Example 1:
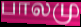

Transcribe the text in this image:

பாலமு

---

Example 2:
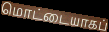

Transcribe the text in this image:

மொட்டையாகப்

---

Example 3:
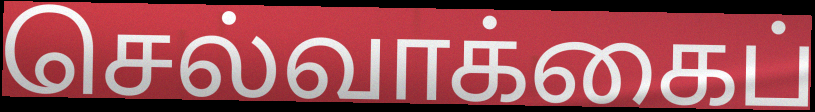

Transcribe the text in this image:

செல்வாக்கைப்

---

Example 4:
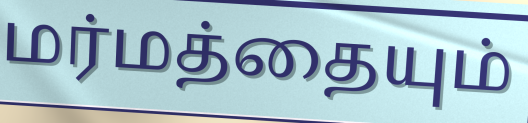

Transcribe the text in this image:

மர்மத்தையும்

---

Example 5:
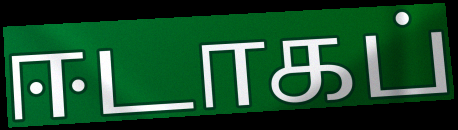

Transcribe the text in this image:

ஈடாகப்